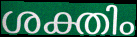
ശക്തിം